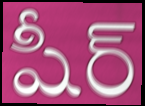
షీర్